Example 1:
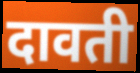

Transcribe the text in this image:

दावती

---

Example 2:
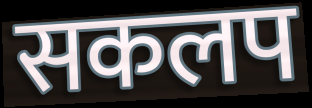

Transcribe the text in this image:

सकलप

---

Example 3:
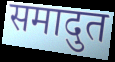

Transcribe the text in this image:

समादुत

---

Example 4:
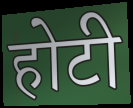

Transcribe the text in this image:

होटी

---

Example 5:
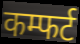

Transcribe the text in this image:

कम्फर्ट